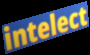
intelect